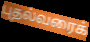
புதல்வரைக்